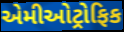
એમીઓટ્રોફિક